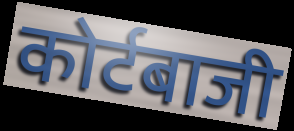
कोर्टबाजी